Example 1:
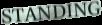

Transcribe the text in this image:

STANDING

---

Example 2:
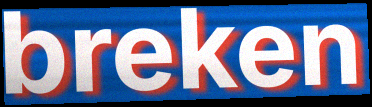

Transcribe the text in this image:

breken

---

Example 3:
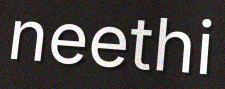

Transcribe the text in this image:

neethi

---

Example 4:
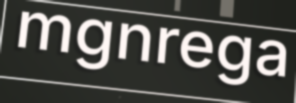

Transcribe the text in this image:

mgnrega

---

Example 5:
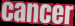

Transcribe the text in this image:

cancer